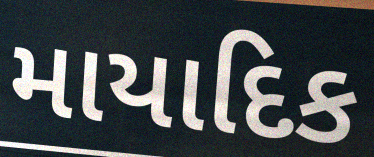
માયાદિક